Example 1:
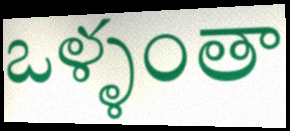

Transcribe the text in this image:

ఒళ్ళంతా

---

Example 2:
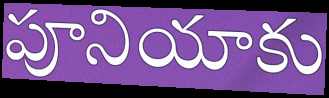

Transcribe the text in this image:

పూనియాకు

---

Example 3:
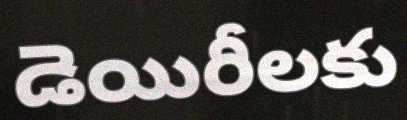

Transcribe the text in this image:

డెయిరీలకు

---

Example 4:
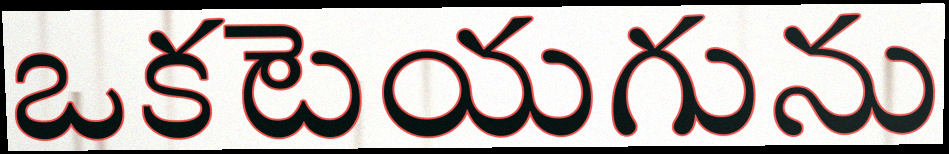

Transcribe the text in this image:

ఒకటెయగును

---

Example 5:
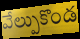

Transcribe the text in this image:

వేల్పుకొండ